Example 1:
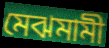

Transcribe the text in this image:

মেঝমামী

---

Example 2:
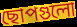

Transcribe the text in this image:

ছোপগুলো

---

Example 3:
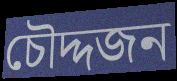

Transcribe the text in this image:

চৌদ্দজন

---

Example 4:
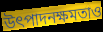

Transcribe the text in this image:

উৎপাদনক্ষমতাও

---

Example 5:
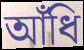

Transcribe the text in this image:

আঁধি